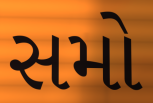
સમો